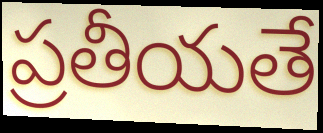
ప్రతీయతే